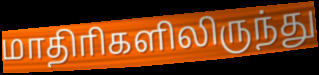
மாதிரிகளிலிருந்து